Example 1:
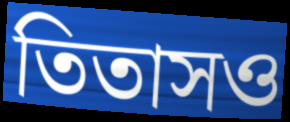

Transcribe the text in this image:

তিতাসও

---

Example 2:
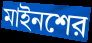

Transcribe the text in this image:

মাইনশের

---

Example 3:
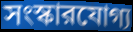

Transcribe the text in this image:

সংস্কারযোগ্য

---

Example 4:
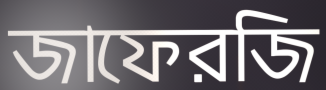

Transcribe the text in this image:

জাফেরজি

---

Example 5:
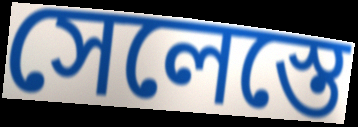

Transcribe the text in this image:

সেলেস্তে